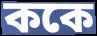
ককে